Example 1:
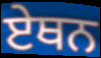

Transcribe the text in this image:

ਏਥਨ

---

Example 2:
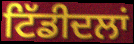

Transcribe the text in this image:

ਟਿੱਡੀਦਲਾਂ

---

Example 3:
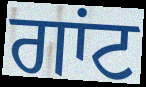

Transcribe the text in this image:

ਗਾਂਟ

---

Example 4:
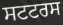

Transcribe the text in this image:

ਸਟਟਰਸ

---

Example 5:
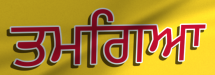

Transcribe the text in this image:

ਤਮਗਿਆ